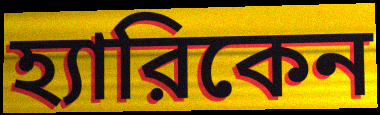
হ্যারিকেন